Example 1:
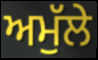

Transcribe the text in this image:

ਅਮੁੱਲੇ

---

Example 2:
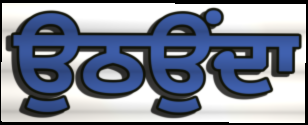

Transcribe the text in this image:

ਉਠਉਂਦਾ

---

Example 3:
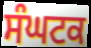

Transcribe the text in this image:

ਸੰਘਟਕ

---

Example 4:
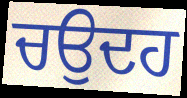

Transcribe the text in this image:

ਚਉਦਹ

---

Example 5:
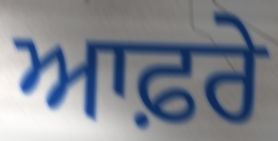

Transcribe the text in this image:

ਆਫ਼ਰੇ